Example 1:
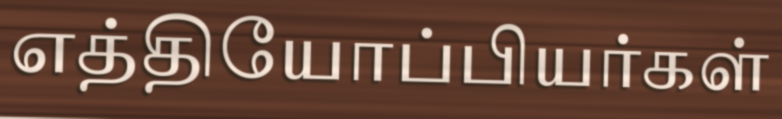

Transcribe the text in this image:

எத்தியோப்பியர்கள்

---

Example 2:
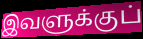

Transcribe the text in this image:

இவளுக்குப்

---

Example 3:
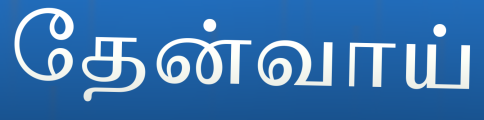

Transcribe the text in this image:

தேன்வாய்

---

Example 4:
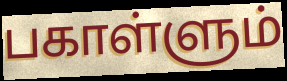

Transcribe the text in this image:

பகாள்ளும்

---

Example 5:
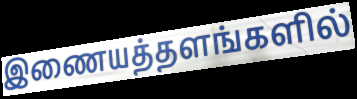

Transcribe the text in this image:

இணையத்தளங்களில்